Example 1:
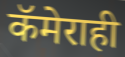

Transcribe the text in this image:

कॅमेराही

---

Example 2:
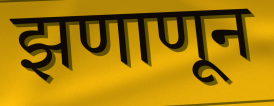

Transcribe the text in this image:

झणाणून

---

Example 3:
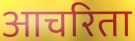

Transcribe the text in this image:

आचरिता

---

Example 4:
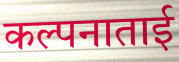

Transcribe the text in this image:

कल्पनाताई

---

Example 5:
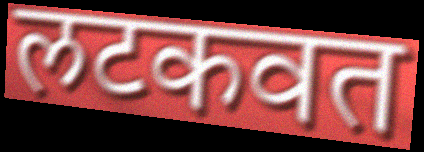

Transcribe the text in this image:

लटकवत